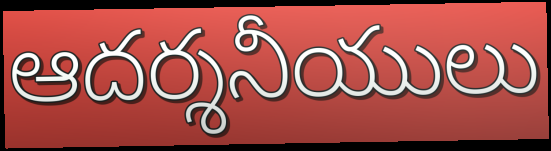
ఆదర్శనీయులు